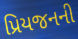
પ્રિયજનની